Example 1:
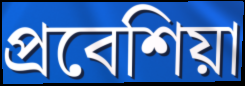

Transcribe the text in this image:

প্রবেশিয়া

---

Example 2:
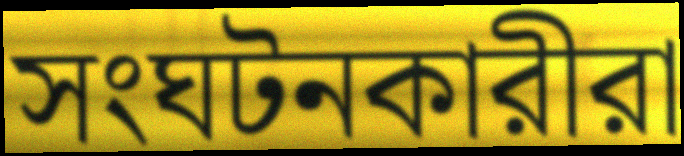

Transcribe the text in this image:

সংঘটনকারীরা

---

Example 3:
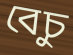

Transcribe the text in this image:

বেচু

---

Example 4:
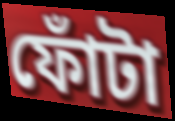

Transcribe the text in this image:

ফোঁটা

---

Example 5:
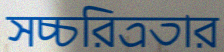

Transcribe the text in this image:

সচ্চরিত্রতার